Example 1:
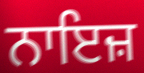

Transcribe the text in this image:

ਨਾਇਜ਼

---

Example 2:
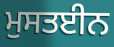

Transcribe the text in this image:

ਮੁਸਤਈਨ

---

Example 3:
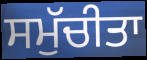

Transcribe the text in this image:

ਸਮੁੱਚੀਤਾ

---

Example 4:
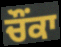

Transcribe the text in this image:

ਚੌਂਕਾ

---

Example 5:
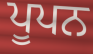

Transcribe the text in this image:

ਪੂਪਨ